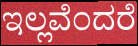
ಇಲ್ಲವೆಂದರೆ